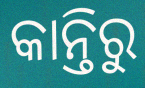
କାନ୍ତିରୁ